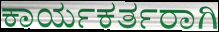
ಕಾರ್ಯಕರ್ತರಾಗಿ